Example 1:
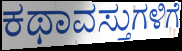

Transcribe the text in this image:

ಕಥಾವಸ್ತುಗಳಿಗೆ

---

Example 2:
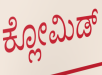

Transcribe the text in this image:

ಕ್ಲೋಮಿಡ್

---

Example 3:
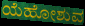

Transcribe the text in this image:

ಯೆಹೋಶುವ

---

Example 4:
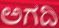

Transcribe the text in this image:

ಅಗದಿ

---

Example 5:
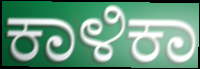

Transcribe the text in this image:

ಕಾಳಿಕಾ